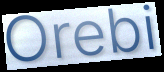
Orebi